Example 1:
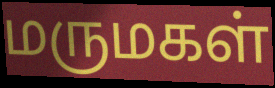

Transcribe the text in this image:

மருமகள்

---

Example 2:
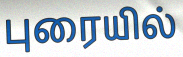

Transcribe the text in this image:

புரையில்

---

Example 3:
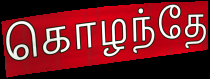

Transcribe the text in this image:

கொழந்தே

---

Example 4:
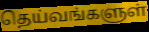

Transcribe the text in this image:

தெய்வங்களுள்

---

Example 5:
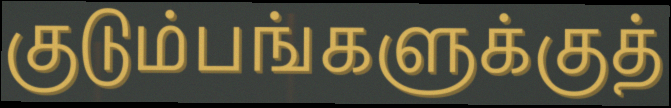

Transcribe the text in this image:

குடும்பங்களுக்குத்